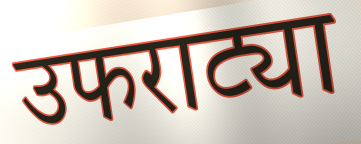
उफराट्या